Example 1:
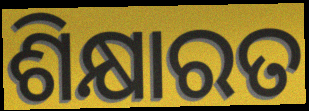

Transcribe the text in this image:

ଶିକ୍ଷାରତ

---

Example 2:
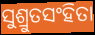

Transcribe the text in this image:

ସୁଶ୍ରୁତସଂହିତା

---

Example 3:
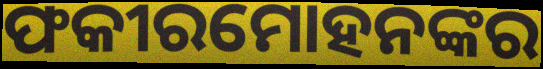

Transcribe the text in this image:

ଫକୀରମୋହନଙ୍କର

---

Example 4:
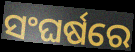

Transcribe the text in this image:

ସଂଘର୍ଷରେ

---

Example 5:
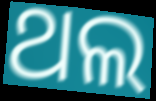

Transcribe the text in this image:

ଥଲ